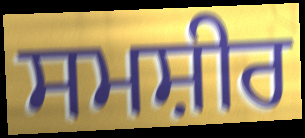
ਸਮਸ਼ੀਰ